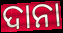
ଦାନା